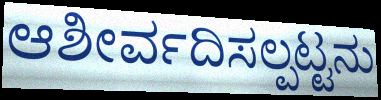
ಆಶೀರ್ವದಿಸಲ್ಪಟ್ಟನು